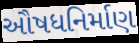
ઔષધનિર્માણ